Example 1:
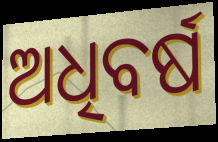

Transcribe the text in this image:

ଅଧିବର୍ଷ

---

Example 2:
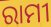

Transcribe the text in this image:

ରାମୀ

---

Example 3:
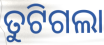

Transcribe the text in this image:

ତୁଟିଗଲା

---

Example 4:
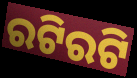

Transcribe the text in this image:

ରଟିରଟି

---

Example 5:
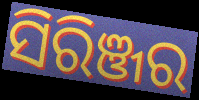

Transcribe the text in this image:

ସିରିଞ୍ଜର